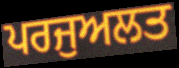
ਪਰਜੁਅਲਤ